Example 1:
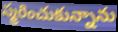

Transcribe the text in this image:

స్మరించుకున్నాను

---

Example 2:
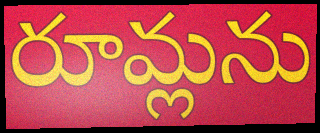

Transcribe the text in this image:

రూమ్లను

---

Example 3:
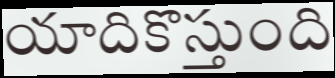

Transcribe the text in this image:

యాదికొస్తుంది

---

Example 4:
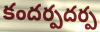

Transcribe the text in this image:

కందర్పదర్ప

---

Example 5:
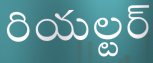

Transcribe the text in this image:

రియల్టర్